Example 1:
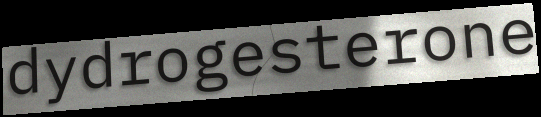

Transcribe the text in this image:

dydrogesterone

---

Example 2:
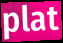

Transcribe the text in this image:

plat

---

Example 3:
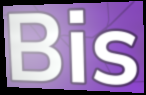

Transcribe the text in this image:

Bis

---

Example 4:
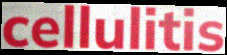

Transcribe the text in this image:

cellulitis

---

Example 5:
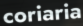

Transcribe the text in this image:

coriaria